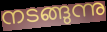
നടങ്ങുന്നു